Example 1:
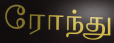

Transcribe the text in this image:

ரோந்து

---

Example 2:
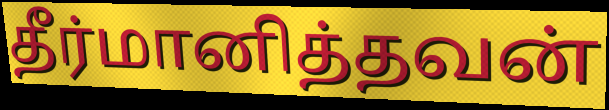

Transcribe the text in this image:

தீர்மானித்தவன்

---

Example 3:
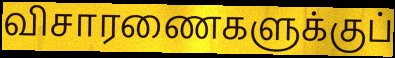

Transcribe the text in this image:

விசாரணைகளுக்குப்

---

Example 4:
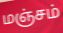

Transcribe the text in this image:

மஞ்சம்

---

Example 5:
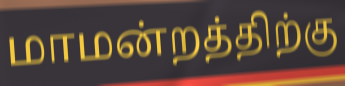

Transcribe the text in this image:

மாமன்றத்திற்கு